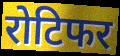
रोटिफर